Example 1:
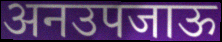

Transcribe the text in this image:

अनउपजाऊ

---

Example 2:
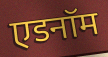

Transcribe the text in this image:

एडनॉम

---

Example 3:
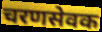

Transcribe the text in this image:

चरणसेवक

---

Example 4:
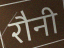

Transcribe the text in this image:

रौनी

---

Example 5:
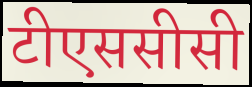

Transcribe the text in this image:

टीएससीसी